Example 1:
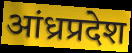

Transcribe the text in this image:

आंध्रप्रदेश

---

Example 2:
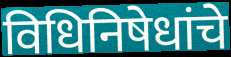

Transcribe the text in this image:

विधिनिषेधांचे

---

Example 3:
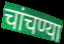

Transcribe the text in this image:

चांचण्या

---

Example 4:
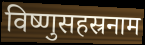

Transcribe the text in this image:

विष्णुसहस्रनाम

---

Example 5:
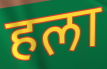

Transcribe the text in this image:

हला